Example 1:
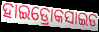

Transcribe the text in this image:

ହାଇଡ୍ରୋକସାଇଡ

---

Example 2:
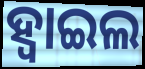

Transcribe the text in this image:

ହ୍ବାଇଲ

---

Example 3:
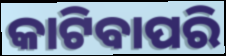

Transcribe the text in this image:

କାଟିବାପରି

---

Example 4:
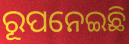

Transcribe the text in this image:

ରୂପନେଇଛି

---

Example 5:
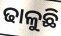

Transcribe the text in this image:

ଢାଳୁଛି